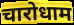
चारोधाम